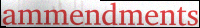
ammendments